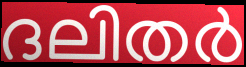
ദലിതർ